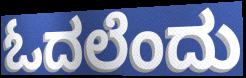
ಓದಲೆಂದು